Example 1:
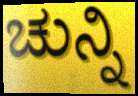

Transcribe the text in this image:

ಚುನ್ನಿ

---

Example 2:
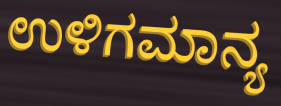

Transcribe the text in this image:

ಉಳಿಗಮಾನ್ಯ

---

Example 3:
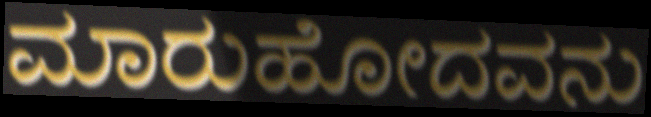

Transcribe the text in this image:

ಮಾರುಹೋದವನು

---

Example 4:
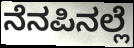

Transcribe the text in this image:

ನೆನಪಿನಲ್ಲೆ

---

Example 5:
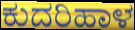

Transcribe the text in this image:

ಕುದರಿಹಾಳ